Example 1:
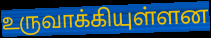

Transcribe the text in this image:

உருவாக்கியுள்ளன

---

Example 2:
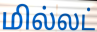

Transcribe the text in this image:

மில்லட்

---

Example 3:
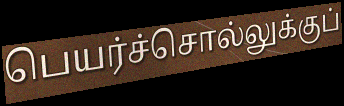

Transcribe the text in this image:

பெயர்ச்சொல்லுக்குப்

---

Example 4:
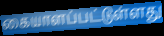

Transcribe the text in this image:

கையாளப்பட்டுள்ளது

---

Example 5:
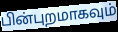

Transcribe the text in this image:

பின்புறமாகவும்